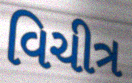
વિચીત્ર